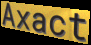
Axact